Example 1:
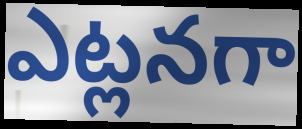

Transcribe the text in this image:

ఎట్లనగా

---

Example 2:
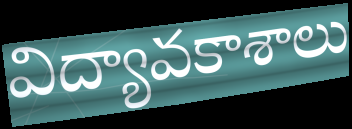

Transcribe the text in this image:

విద్యావకాశాలు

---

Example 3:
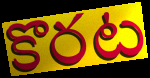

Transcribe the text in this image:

కొరట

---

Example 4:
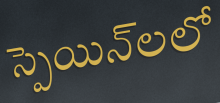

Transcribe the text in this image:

స్పెయిన్‌లలో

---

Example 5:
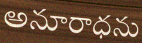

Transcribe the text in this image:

అనూరాధను